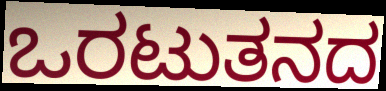
ಒರಟುತನದ